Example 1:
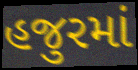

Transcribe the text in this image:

હજુરમાં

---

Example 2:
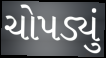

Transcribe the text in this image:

ચોપડ્યું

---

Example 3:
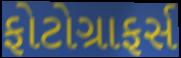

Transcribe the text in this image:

ફોટોગ્રાફર્સ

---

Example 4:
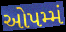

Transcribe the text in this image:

ઓપમ્મં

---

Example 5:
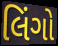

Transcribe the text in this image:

લિંગો